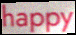
happy